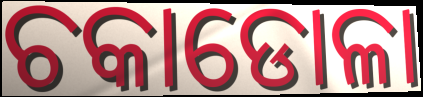
ଚକାଡୋଳା